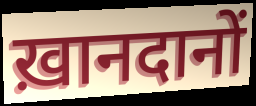
ख़ानदानों